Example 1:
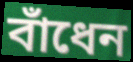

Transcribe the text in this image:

বাঁধেন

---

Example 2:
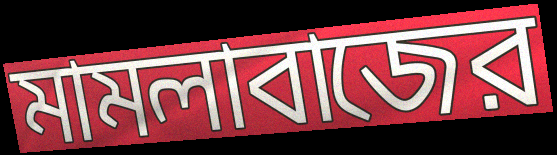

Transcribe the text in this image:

মামলাবাজের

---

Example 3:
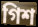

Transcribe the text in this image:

গিশ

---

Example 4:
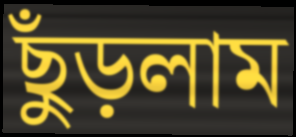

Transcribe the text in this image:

ছুঁড়লাম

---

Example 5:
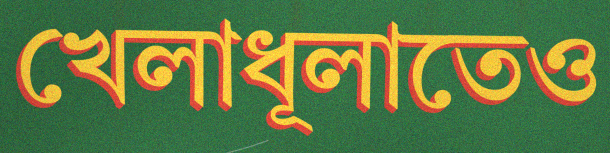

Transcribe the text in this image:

খেলাধূলাতেও